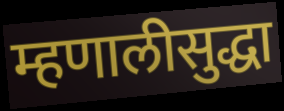
म्हणालीसुद्धा